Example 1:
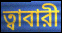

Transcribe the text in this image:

ত্বাবারী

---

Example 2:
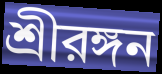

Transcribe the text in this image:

শ্রীরঙ্গন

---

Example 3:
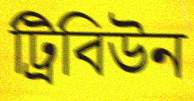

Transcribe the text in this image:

ট্রিবিউন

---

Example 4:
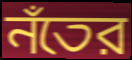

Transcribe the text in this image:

নঁতের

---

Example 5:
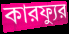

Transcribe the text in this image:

কারফ্যুর